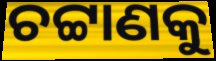
ଚଟ୍ଟାଣକୁ